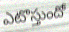
ఎటొస్తుందో